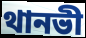
থানভী